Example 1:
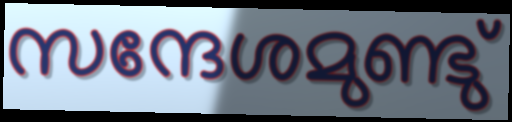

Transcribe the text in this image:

സന്ദേശമുണ്ടു്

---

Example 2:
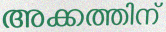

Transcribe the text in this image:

അക്കത്തിന്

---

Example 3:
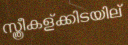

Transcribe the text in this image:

സ്ത്രീകള്ക്കിടയില്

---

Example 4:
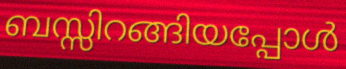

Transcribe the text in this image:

ബസ്സിറങ്ങിയപ്പോൾ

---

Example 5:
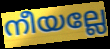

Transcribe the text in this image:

നീയല്ലേ